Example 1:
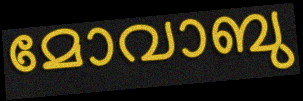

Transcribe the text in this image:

മോവാബു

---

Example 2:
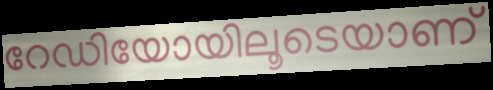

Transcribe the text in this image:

റേഡിയോയിലൂടെയാണ്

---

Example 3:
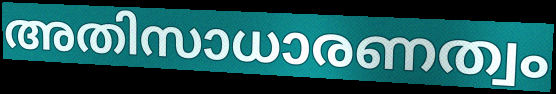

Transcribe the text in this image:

അതിസാധാരണത്വം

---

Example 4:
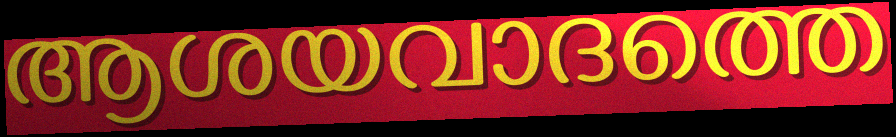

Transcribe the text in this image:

ആശയവാദത്തെ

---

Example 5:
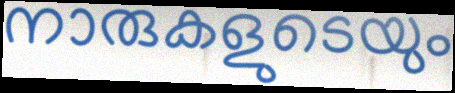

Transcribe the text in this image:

നാരുകളുടെയും